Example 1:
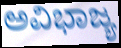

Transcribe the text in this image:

ಅವಿಭಾಜ್ಯ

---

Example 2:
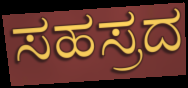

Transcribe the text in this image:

ಸಹಸ್ರದ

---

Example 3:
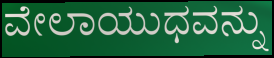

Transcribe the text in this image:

ವೇಲಾಯುಧವನ್ನು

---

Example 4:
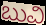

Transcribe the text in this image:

ಬುವಿ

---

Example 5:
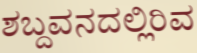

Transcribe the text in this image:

ಶಬ್ದವನದಲ್ಲಿರಿವ